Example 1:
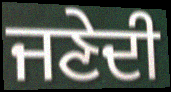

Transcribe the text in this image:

ਜਣੇਦੀ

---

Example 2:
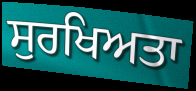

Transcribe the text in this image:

ਸੁਰਖਿਅਤਾ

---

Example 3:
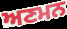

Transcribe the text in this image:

ਅਣਮਨ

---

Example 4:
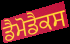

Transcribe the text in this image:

ਡੈਮੋਡੈਕਸ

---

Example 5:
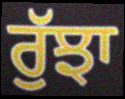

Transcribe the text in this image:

ਰੁੱਝਾ